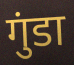
गुंडा